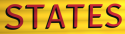
STATES